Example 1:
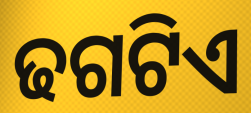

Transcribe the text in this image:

ଢଗଟିଏ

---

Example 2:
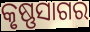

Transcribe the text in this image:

କୃଷ୍ଣସାଗର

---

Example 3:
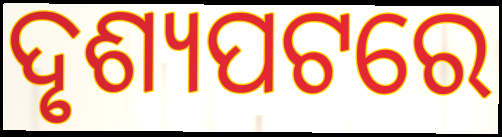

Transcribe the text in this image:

ଦୃଶ୍ୟପଟରେ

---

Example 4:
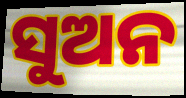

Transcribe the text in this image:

ସୁଅନ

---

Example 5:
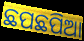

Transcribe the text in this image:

ଛପଛପିଆ